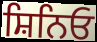
ਸ਼ਿਨਿਓ